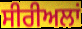
ਸੀਰੀਅਲਾਂ